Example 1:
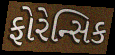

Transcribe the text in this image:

ફોરેન્સિક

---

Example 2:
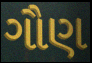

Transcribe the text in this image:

ગૌણ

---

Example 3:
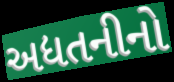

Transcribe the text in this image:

અદ્યતનીનો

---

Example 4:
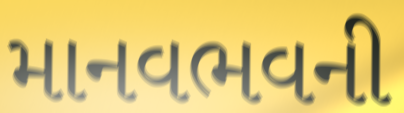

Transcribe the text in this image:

માનવભવની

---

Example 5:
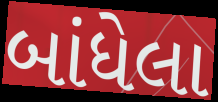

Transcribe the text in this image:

બાંધેલા